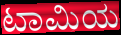
ಟಾಮಿಯ